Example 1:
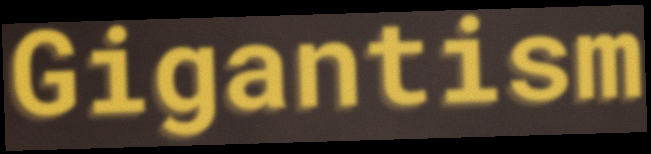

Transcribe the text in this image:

Gigantism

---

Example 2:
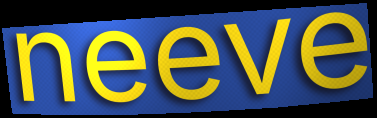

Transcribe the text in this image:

neeve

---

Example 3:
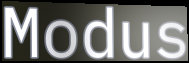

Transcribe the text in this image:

Modus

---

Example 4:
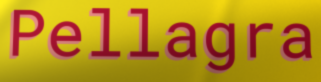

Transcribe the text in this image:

Pellagra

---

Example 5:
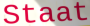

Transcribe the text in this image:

Staat